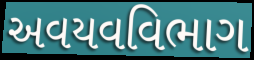
અવયવવિભાગ